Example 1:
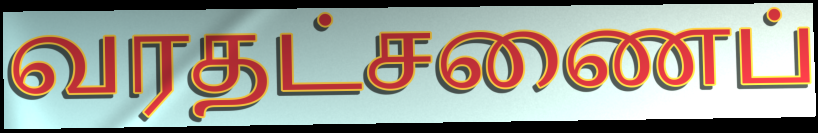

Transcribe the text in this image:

வரதட்சணைப்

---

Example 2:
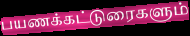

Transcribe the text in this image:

பயணக்கட்டுரைகளும்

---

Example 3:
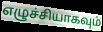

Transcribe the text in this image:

எழுச்சியாகவும்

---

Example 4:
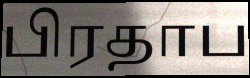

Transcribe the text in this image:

பிரதாப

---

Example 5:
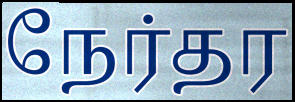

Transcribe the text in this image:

நேர்தர